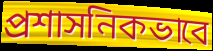
প্রশাসনিকভাবে